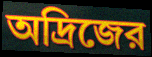
অদ্রিজের